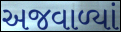
અજવાળ્યાં